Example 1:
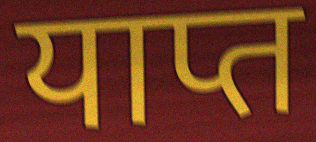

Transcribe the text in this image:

याप्त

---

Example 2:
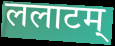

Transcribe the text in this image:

ललाटम्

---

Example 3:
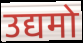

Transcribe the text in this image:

उद्यमो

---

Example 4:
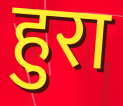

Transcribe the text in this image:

हुरा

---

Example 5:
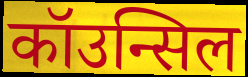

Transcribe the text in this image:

कॉउन्सिल